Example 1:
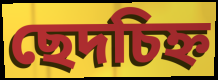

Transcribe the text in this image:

ছেদচিহ্ন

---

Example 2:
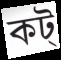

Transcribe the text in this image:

কট্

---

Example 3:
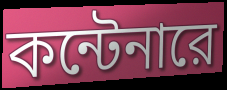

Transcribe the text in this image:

কন্টেনারে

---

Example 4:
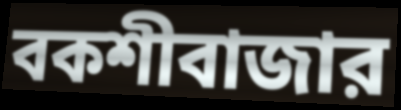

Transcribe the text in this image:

বকশীবাজার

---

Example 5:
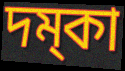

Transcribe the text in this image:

দম্‌কা